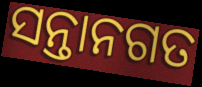
ସନ୍ତାନଗତ